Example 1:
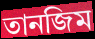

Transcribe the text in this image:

তানজিম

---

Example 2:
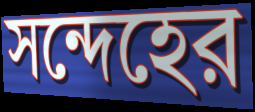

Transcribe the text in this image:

সন্দেহের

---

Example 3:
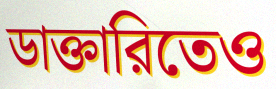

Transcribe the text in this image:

ডাক্তারিতেও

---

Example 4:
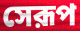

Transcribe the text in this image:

সেরূপ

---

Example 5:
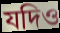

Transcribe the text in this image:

যদিও